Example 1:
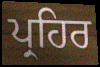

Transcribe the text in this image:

ਪ੍ਰਹਿਰ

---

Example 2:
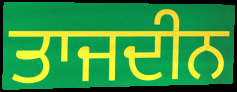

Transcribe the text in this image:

ਤਾਜਦੀਨ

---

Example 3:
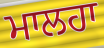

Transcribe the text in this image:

ਮਾਲਹਾ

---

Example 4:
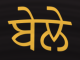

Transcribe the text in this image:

ਬੇਲੇ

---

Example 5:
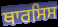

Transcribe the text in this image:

ਥਾਰਸਿਸ